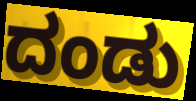
ದಂಡು